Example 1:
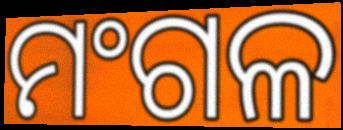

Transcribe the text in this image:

ମଂଗଳ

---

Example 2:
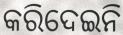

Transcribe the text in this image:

କରିଦେଇନି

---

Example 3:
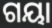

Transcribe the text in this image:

ଗୟା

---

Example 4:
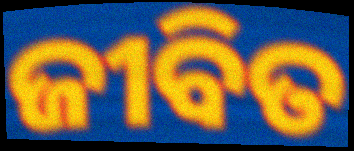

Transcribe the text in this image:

ଜୀବିତ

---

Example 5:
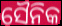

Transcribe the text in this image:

ସୈନିକ